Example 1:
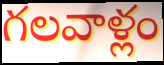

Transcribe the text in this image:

గలవాళ్లం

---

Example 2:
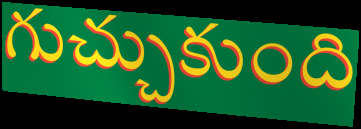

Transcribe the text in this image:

గుచ్చుకుంది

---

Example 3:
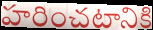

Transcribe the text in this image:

హరించటానికి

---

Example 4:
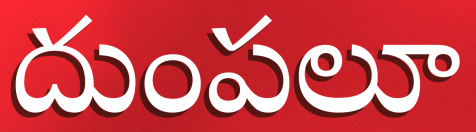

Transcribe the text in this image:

దుంపలూ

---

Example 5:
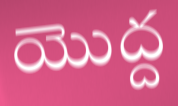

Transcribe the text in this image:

యొద్ద